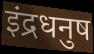
इंद्रधनुष